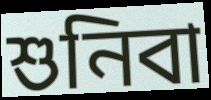
শুনিবা